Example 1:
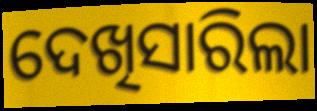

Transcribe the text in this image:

ଦେଖିସାରିଲା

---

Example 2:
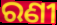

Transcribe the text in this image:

ରଣୀ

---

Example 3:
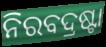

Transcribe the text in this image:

ନିରବଦ୍ରଷ୍ଟା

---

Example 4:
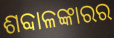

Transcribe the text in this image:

ଶବ୍ଦାଳଙ୍କାରର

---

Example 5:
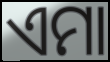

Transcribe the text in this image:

ଏମା